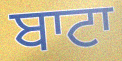
ਬਾਟਾ